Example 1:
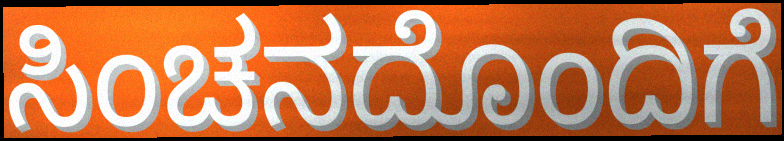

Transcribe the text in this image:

ಸಿಂಚನದೊಂದಿಗೆ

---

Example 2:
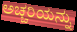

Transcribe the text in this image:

ಅಚ್ಚರಿಯನ್ನು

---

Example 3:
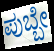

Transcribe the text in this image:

ಪುಬ್ಬೇ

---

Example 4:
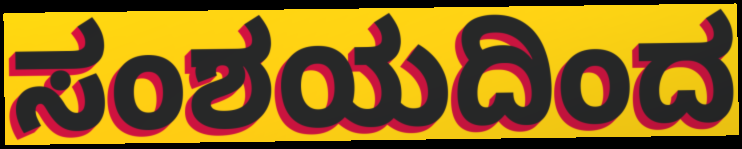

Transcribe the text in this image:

ಸಂಶಯದಿಂದ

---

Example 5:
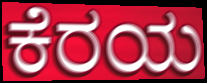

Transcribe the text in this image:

ಕೆರಯ